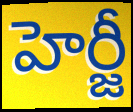
హెర్జీ